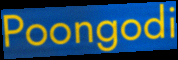
Poongodi